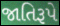
જાતિરૂપે